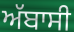
ਅੱਬਾਸੀ